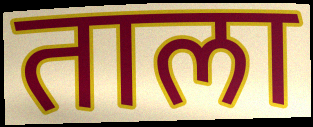
ताला